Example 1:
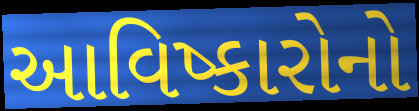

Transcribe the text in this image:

આવિષ્કારોનો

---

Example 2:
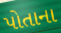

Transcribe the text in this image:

પોતાના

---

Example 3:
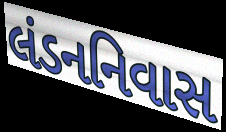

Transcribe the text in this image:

લંડનનિવાસ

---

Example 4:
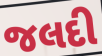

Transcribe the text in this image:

જલદી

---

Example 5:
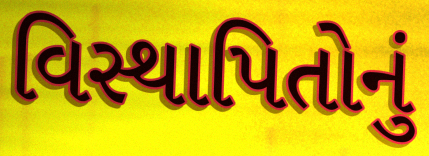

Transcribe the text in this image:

વિસ્થાપિતોનું